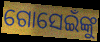
ଗୋସେଇଁଙ୍କୁ